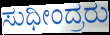
ಸುಧೀಂದ್ರರು